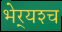
भेर्यश्च